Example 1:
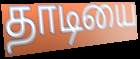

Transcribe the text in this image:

தாடியை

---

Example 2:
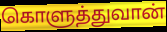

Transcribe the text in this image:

கொளுத்துவான்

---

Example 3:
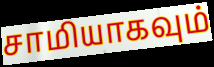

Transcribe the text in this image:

சாமியாகவும்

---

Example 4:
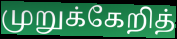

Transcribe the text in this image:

முறுக்கேறித்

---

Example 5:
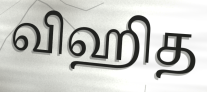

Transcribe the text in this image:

விஹித